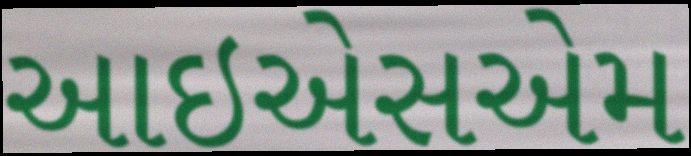
આઇએસએમ